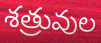
శత్రువుల